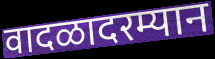
वादळादरम्यान